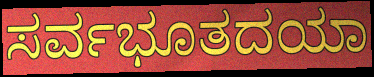
ಸರ್ವಭೂತದಯಾ